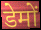
डेमों